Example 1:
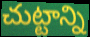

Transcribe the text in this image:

చుట్టాన్ని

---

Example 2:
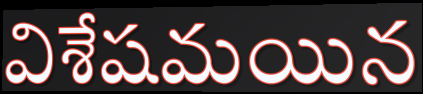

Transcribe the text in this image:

విశేషమయిన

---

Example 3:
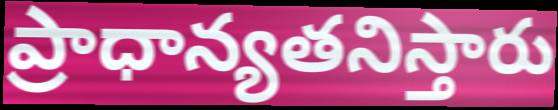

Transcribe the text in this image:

ప్రాధాన్యతనిస్తారు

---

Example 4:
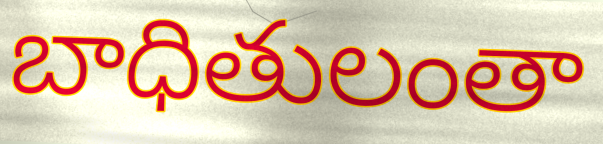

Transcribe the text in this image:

బాధితులంతా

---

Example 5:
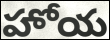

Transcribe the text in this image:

హోయ